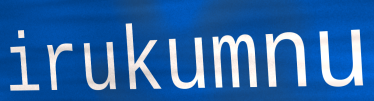
irukumnu